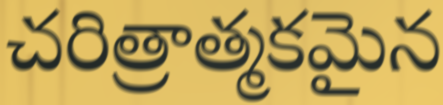
చరిత్రాత్మకమైన